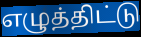
எழுத்திட்டு